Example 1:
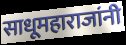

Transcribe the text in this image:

साधूमहाराजांनी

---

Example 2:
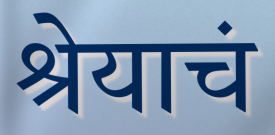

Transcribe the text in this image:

श्रेयाचं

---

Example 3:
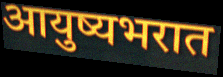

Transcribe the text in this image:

आयुष्यभरात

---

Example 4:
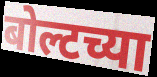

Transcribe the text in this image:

बोल्टच्या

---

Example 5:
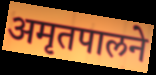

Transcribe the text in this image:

अमृतपालने